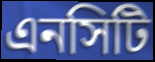
এনসিটি